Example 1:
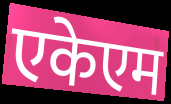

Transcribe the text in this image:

एकेएम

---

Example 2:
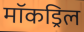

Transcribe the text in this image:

मॉकड्रिल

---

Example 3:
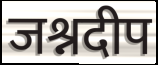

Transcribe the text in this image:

जश्नदीप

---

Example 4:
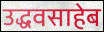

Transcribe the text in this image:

उद्धवसाहेब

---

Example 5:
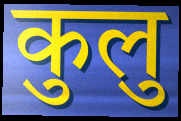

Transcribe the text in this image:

कुलु